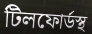
টিলফোর্ডস্থ